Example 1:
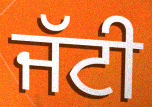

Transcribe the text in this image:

ਜੱਟੀ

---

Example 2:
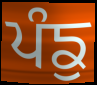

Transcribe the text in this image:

ਪੰਙੁ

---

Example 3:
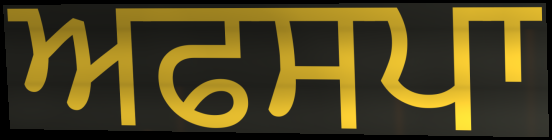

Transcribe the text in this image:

ਅਫਸਪਾ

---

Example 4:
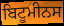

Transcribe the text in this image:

ਬਿਟੂਮੀਨਸ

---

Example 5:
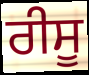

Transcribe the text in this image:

ਰੀਸੂ